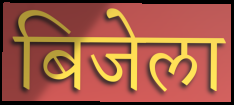
बिजेला